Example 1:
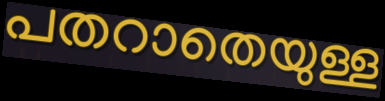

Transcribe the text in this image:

പതറാതെയുള്ള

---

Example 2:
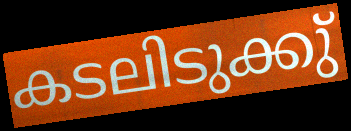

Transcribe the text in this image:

കടലിടുക്കു്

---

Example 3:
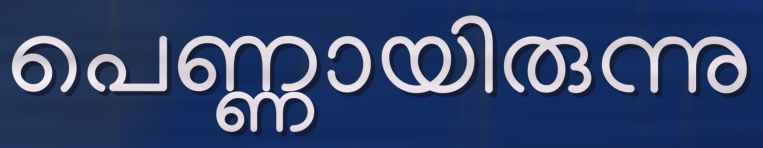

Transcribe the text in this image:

പെണ്ണായിരുന്നു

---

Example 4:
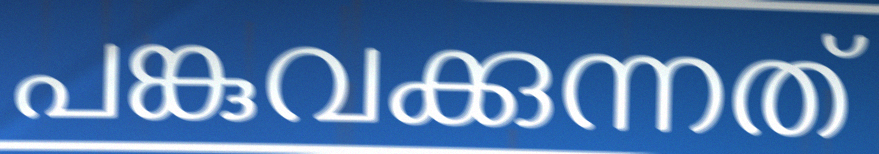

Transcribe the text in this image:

പങ്കുവക്കുന്നത്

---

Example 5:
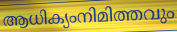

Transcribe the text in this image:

ആധിക്യംനിമിത്തവും